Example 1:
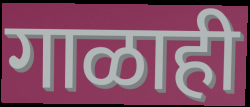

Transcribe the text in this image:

गाळाही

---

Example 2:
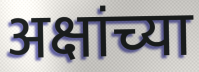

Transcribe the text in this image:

अक्षांच्या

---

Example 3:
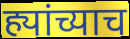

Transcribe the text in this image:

ह्यांच्याच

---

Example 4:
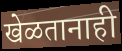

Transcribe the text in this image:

खेळतानाही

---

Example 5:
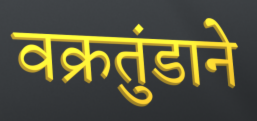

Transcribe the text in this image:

वक्रतुंडाने